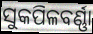
ସୁକପିଳବର୍ଣ୍ଣା